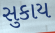
સુકાય